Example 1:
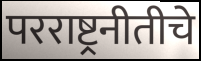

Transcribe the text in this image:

परराष्ट्रनीतीचे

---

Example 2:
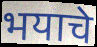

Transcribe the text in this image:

भयाचे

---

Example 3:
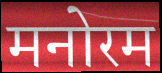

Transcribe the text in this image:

मनोरम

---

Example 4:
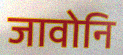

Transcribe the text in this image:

जावोनि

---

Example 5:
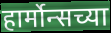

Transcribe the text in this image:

हार्मोन्सच्या